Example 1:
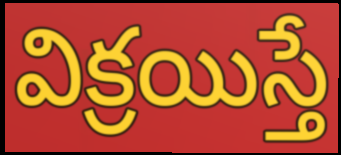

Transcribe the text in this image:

విక్రయిస్తే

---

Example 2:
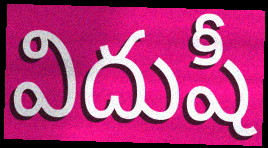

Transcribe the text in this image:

విదుషీ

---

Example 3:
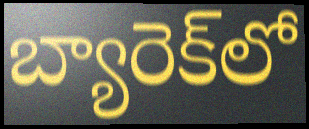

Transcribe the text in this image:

బ్యారెక్‌లో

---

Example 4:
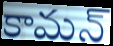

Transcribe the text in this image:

కామన్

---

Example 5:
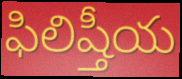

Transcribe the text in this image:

ఫిలిష్తీయ